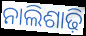
ନାଲିଶାଢ଼ି